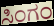
ಸಿಂಗಂ